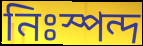
নিঃস্পন্দ